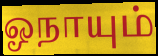
ஓநாயும்